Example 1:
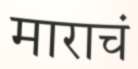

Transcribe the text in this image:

माराचं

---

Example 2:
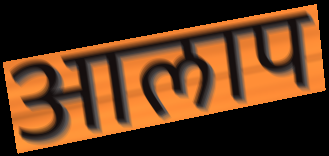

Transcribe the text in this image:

आलाप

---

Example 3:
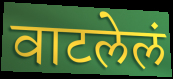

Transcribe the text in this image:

वाटलेलं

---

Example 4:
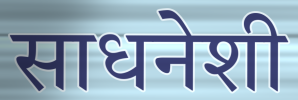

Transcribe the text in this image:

साधनेशी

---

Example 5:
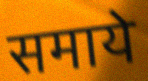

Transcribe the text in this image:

समाये